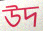
উদ